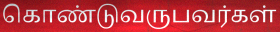
கொண்டுவருபவர்கள்